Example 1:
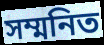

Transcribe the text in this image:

সম্মনিত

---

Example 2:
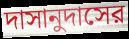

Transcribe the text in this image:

দাসানুদাসের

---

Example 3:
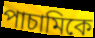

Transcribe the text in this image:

পাচামিকে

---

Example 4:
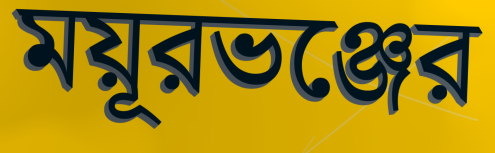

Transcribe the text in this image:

ময়ূরভঞ্জের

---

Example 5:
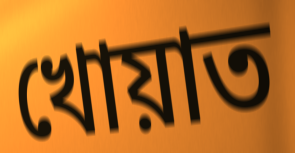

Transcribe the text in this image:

খোয়াত